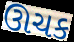
ઊચક